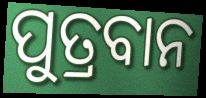
ପୁତ୍ରବାନ